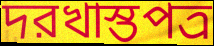
দরখাস্তপত্র